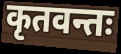
कृतवन्तः